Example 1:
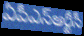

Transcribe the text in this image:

ఏపీఎస్ఆర్టీసీ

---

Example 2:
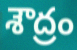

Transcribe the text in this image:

శౌద్రం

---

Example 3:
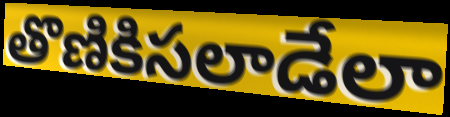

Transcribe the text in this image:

తొణికిసలాడేలా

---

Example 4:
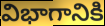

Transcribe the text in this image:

విభాగానికి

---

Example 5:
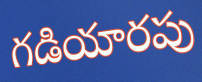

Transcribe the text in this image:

గడియారపు